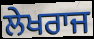
ਲੇਖਰਾਜ